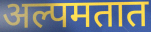
अल्पमतात